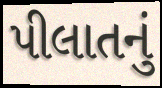
પીલાતનું